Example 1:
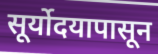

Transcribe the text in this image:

सूर्योदयापासून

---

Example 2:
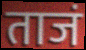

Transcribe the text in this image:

ताजं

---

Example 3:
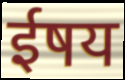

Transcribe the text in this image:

ईषय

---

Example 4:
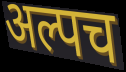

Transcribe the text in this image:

अल्पच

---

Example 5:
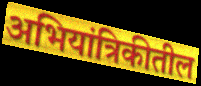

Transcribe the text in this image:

अभियांत्रिकीतील